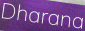
Dharana